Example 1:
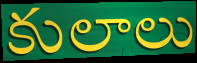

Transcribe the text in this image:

కులాలు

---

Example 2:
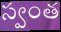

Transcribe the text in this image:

స్వంత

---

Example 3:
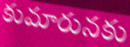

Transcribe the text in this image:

కుమారునకు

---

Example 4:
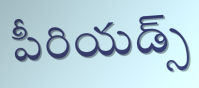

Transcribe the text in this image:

పీరియడ్స్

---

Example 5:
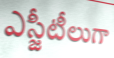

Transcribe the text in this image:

ఎస్జీటీలుగా